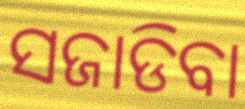
ସଜାଡିବା